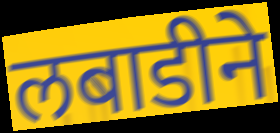
लबाडीने